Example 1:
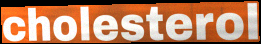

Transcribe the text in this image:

cholesterol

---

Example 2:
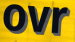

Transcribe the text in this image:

ovr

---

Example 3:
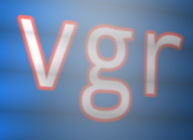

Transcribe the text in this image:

vgr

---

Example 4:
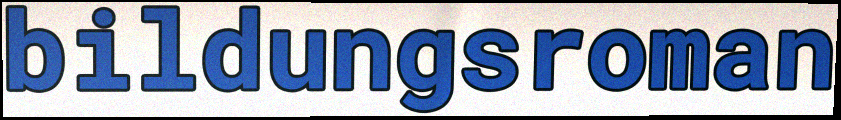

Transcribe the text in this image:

bildungsroman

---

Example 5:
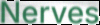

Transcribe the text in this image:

Nerves